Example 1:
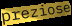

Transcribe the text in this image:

preziose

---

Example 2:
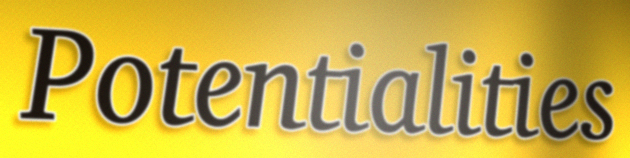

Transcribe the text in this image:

Potentialities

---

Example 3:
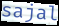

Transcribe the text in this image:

sajal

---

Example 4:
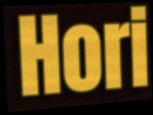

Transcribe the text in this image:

Hori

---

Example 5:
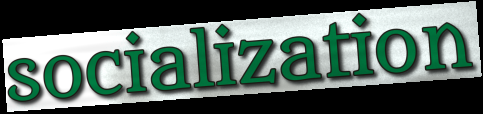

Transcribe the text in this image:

socialization